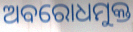
ଅବରୋଧମୁକ୍ତ